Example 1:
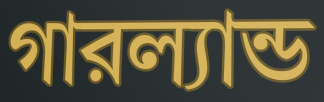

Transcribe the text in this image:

গারল্যান্ড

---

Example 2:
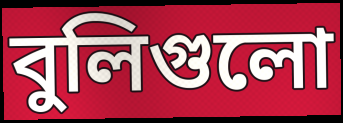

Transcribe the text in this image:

বুলিগুলো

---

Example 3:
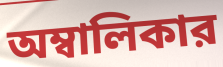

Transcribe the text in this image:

অম্বালিকার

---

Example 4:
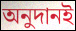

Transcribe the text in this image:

অনুদানই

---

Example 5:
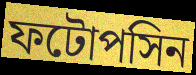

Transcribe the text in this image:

ফটোপসিন